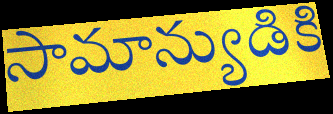
సామాన్యుడికి